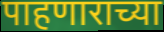
पाहणाराच्या